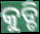
କୁଡ୍ଡି